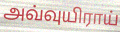
அவ்வுயிராய்